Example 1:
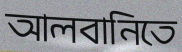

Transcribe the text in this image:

আলবানিতে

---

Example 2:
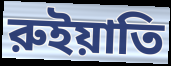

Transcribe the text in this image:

রুইয়াতি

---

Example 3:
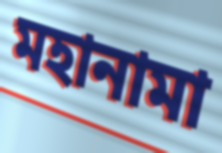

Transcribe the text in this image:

মহানামা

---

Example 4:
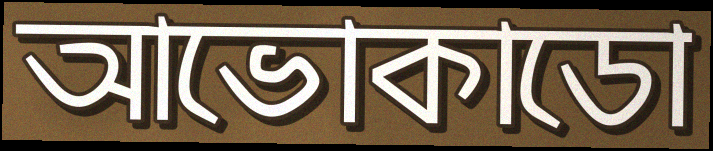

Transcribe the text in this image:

আভোকাডো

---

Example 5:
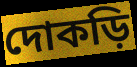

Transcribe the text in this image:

দোকড়ি